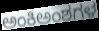
ಅಂಕಿಅಂಶಗಳ